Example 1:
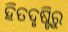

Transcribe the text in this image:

ହିତଦୃଷ୍ଟିରୁ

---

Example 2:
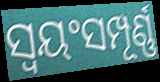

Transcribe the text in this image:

ସ୍ବୟଂସମ୍ପୂର୍ଣ୍ଣ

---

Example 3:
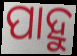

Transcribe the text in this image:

ପାହୁ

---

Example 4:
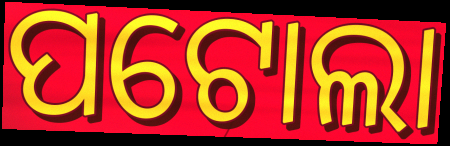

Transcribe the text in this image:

ପଟୋଲା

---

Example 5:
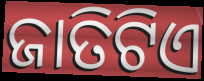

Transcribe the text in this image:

ଜାତିଟିଏ